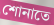
শোনাতে